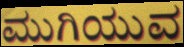
ಮುಗಿಯುವ